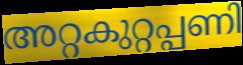
അറ്റകുറ്റപ്പണി